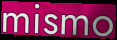
mismo